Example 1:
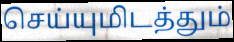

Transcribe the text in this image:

செய்யுமிடத்தும்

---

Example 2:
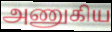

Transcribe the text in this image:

அணுகிய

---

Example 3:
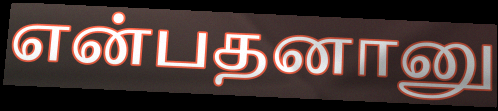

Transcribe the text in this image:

என்பதனானு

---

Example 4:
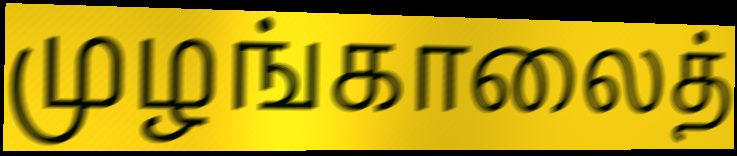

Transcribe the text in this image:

முழங்காலைத்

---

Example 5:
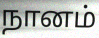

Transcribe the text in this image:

நானம்